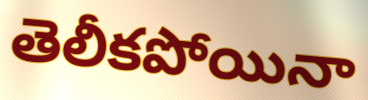
తెలీకపోయినా